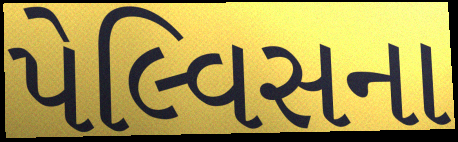
પેલ્વિસના